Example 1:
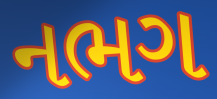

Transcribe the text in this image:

નભગ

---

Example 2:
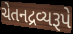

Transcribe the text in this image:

ચેતનદ્રવ્યરૂપે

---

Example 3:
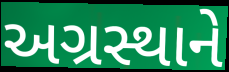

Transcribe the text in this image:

અગ્રસ્થાને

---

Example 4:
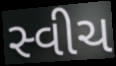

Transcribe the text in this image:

સ્વીચ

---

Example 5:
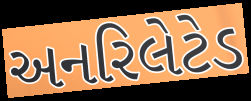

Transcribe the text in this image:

અનરિલેટેડ